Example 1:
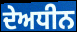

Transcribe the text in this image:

ਦੇਅਧੀਨ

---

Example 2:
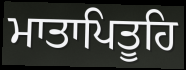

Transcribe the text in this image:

ਮਾਤਾਪਿਤੂਹਿ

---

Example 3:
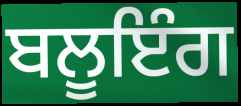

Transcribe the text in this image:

ਬਲੂਇੰਗ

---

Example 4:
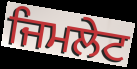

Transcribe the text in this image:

ਜਿਮਲੇਟ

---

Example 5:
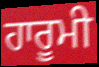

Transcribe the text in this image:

ਹਾਰੂਮੀ